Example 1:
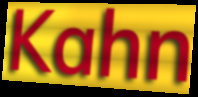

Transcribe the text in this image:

Kahn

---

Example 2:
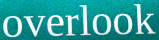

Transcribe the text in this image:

overlook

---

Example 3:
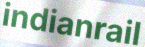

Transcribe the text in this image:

indianrail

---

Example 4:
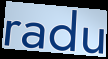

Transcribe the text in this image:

radu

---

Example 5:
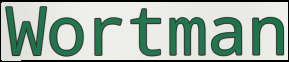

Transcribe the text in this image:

Wortman